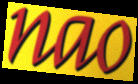
nao